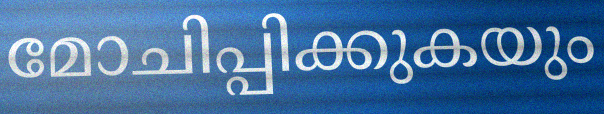
മോചിപ്പിക്കുകയും